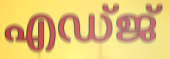
എഡ്ജ്